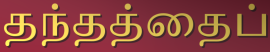
தந்தத்தைப்